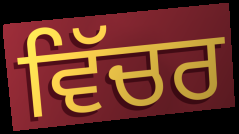
ਵਿੱਚਰ